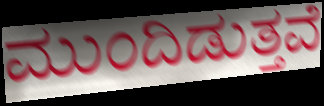
ಮುಂದಿಡುತ್ತವೆ